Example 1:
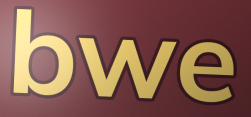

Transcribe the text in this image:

bwe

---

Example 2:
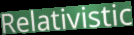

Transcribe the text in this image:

Relativistic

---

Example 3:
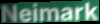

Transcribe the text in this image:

Neimark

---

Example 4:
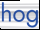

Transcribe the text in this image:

hog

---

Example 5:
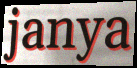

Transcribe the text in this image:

janya